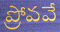
ప్రోవవే